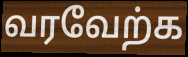
வரவேற்க